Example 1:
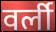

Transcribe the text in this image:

वर्ली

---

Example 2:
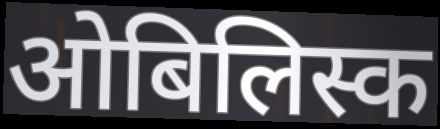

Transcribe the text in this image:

ओबिलिस्क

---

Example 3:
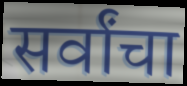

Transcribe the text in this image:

सर्वांचा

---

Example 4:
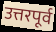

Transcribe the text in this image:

उत्तरपूर्व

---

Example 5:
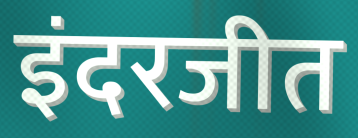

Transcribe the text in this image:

इंदरजीत